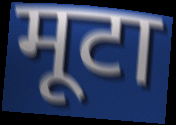
मूटा